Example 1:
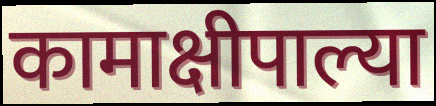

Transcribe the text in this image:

कामाक्षीपाल्या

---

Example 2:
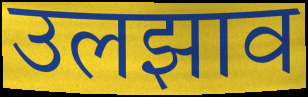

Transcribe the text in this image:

उलझाव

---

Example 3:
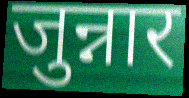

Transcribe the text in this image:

जुन्नार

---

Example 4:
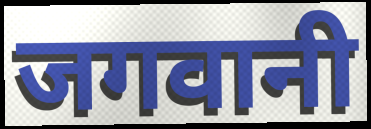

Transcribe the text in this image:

जगवानी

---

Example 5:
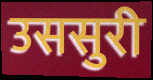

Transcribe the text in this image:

उससुरी